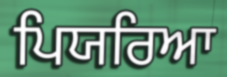
ਪਿਯਰਿਆ